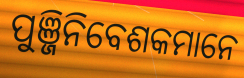
ପୁଞ୍ଜିନିବେଶକମାନେ